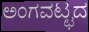
ಅಂಗವಟ್ಟದ